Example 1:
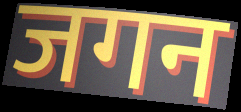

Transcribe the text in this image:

जगन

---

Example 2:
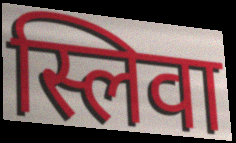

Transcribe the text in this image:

स्लिवा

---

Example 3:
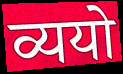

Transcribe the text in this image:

व्ययो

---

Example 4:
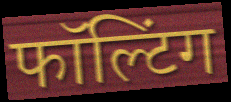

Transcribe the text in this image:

फॉल्टिंग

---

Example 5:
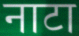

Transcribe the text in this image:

नाटा